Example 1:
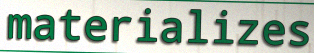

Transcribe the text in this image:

materializes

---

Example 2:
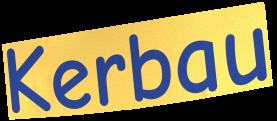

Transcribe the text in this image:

Kerbau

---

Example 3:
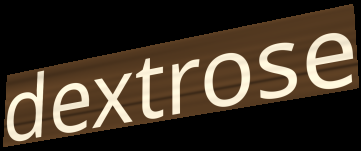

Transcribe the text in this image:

dextrose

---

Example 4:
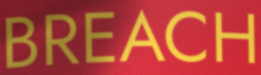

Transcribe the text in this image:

BREACH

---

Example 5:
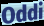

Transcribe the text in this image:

Oddi